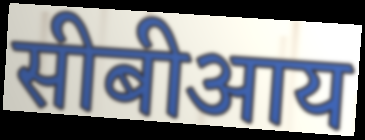
सीबीआय